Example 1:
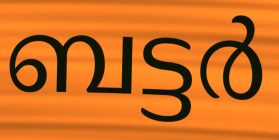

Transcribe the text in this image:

ബട്ടർ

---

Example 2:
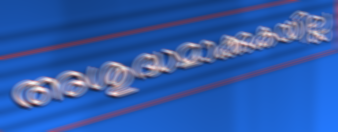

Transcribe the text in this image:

അശുദ്ധമാക്കുകയില്ല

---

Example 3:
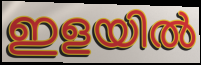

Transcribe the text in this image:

ഇളയിൽ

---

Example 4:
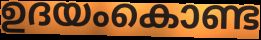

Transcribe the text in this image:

ഉദയംകൊണ്ട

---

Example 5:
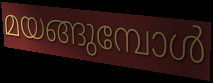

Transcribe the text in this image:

മയങ്ങുമ്പോൾ